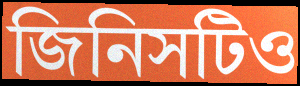
জিনিসটিও